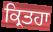
ਕ੍ਰਿਤਹਾ